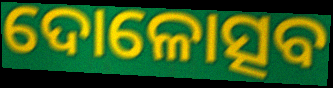
ଦୋଳୋତ୍ସବ